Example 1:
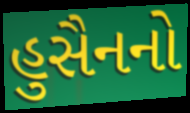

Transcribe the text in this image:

હુસૈનનો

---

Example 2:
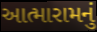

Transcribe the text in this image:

આત્મારામનું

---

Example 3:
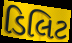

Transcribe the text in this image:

ડિલિટ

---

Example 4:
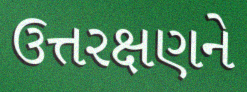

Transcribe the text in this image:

ઉત્તરક્ષણને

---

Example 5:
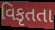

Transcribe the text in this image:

વિકૃતતા